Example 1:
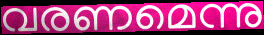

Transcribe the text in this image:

വരണമെന്നു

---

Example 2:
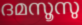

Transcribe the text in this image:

ദമസൂസു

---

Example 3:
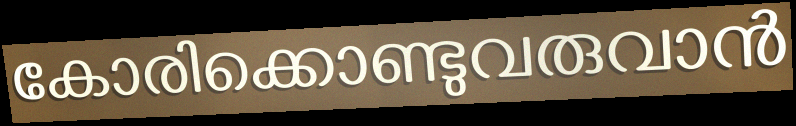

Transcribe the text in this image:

കോരിക്കൊണ്ടുവരുവാൻ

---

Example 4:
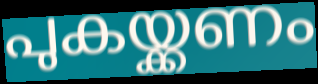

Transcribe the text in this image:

പുകയ്ക്കണം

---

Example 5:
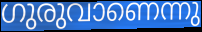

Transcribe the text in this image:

ഗുരുവാണെന്നു